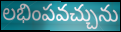
లభింపవచ్చును